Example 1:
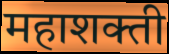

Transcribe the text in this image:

महाशक्ती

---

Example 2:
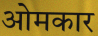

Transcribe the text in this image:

ओमकार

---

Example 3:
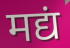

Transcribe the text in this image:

मद्यं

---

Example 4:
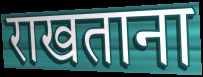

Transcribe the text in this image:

राखताना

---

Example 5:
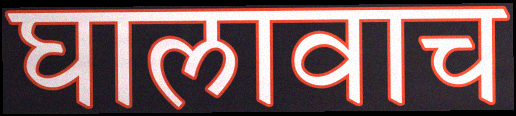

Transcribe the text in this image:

घालावाच